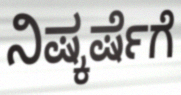
ನಿಷ್ಕರ್ಷೆಗೆ